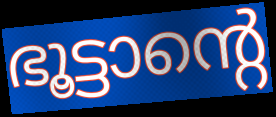
ഭൂട്ടാന്റെ